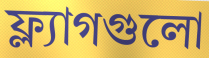
ফ্ল্যাগগুলো